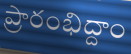
ప్రారంభిద్దాం